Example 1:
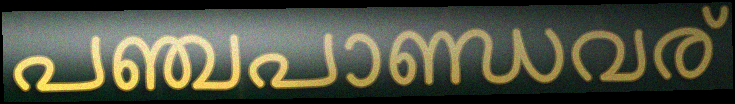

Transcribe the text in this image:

പഞ്ചപാണ്ഡവര്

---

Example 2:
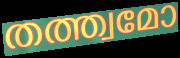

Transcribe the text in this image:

തത്ത്വമോ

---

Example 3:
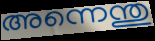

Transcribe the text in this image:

അന്നെന്തു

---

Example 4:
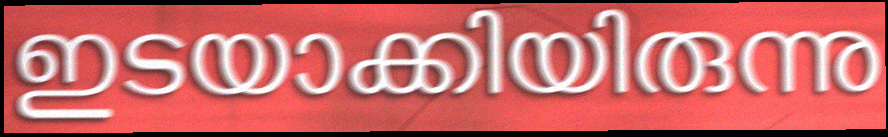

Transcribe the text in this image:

ഇടയാക്കിയിരുന്നു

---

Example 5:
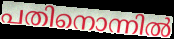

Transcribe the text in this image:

പതിനൊന്നിൽ